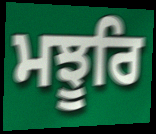
ਮਝੂਰਿ